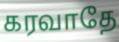
கரவாதே